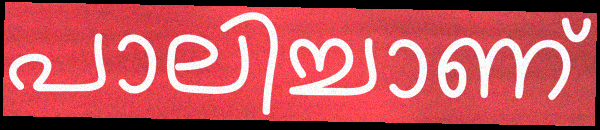
പാലിച്ചാണ്